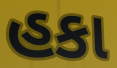
હકા